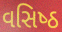
વસિષ્‍ઠ